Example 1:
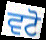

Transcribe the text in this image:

ਵਟੋ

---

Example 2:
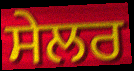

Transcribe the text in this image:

ਸੇਲਰ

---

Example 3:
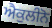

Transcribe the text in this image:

ਐਕੁਲੀਨੋ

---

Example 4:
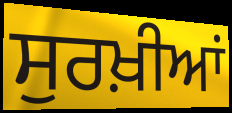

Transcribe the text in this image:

ਸੁਰਖ਼ੀਆਂ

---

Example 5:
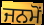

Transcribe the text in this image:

ਜਨਮੋਂ